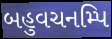
બહુવચનમ્પિ